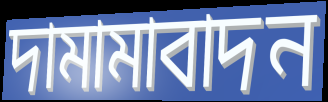
দামামাবাদন